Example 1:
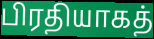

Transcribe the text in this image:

பிரதியாகத்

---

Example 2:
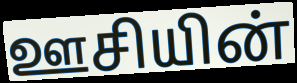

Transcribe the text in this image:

ஊசியின்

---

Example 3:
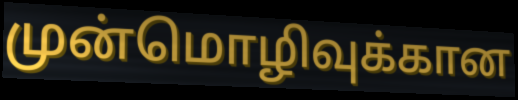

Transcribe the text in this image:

முன்மொழிவுக்கான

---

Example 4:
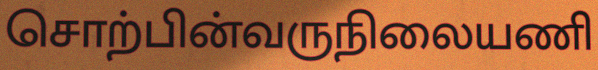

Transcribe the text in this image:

சொற்பின்வருநிலையணி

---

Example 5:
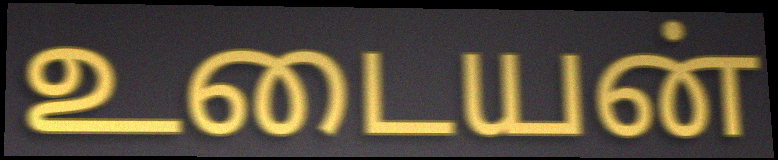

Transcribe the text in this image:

உடையன்